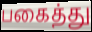
பகைத்து